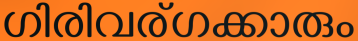
ഗിരിവര്ഗക്കാരും